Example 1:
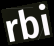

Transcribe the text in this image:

rbi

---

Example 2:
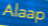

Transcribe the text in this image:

Alaap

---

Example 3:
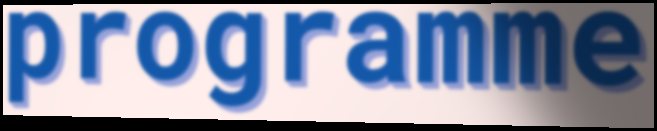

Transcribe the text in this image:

programme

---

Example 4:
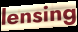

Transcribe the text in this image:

lensing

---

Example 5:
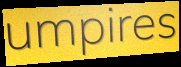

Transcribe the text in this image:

umpires